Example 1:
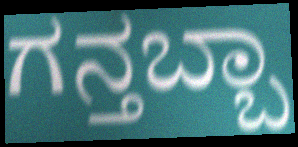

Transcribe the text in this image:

ಗನ್ತಬ್ಬಾ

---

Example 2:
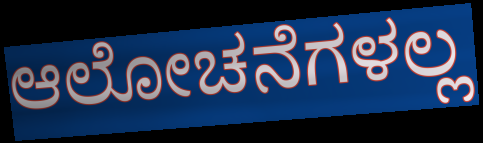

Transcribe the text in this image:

ಆಲೋಚನೆಗಳಲ್ಲ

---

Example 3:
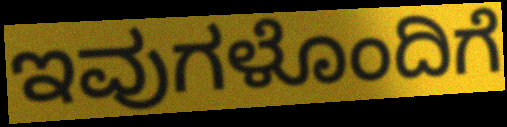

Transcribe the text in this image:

ಇವುಗಳೊಂದಿಗೆ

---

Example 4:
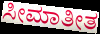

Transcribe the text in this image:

ಸೀಮಾತೀತ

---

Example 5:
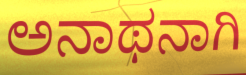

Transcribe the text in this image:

ಅನಾಥನಾಗಿ